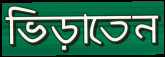
ভিড়াতেন